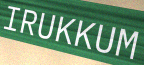
IRUKKUM